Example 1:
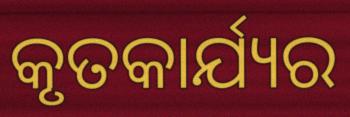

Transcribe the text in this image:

କୃତକାର୍ଯ୍ୟର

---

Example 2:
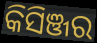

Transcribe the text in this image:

କିସିଞ୍ଜର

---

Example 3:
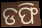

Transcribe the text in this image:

ଡଫି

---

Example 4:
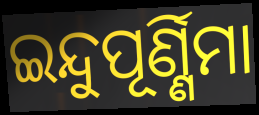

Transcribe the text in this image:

ଇନ୍ଦୁପୂର୍ଣ୍ଣିମା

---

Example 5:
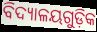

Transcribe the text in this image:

ବିଦ୍ୟାଳୟଗୁଡ଼ିକ